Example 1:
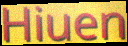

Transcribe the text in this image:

Hiuen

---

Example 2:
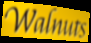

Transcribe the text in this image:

Walnuts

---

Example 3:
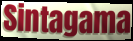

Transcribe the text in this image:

Sintagama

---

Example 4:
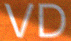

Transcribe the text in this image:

VD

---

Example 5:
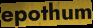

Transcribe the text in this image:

epothum